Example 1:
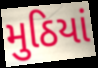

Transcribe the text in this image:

મુઠિયાં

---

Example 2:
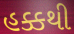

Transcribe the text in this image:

હક્કથી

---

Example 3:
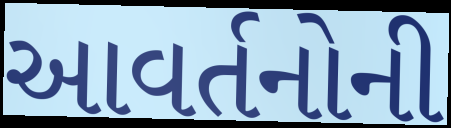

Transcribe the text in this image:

આવર્તનોની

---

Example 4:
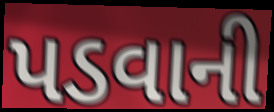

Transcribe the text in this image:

પડવાની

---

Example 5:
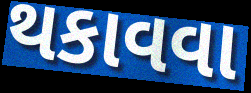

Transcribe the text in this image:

થકાવવા